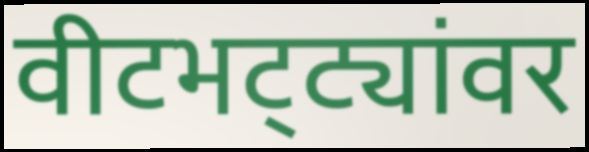
वीटभट्ट्यांवर